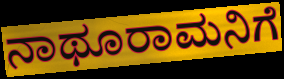
ನಾಥೂರಾಮನಿಗೆ